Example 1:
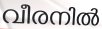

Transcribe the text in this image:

വീരനിൽ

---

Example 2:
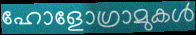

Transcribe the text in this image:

ഹോളോഗ്രാമുകൾ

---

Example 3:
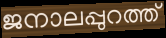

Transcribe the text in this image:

ജനാലപ്പുറത്ത്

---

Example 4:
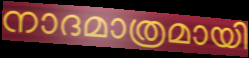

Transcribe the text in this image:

നാദമാത്രമായി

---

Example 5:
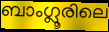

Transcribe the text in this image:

ബാംഗ്ലൂരിലെ